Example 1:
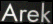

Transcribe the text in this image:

Arek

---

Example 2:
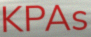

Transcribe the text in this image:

KPAs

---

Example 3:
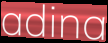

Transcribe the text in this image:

adina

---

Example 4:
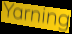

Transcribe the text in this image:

Yarning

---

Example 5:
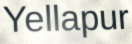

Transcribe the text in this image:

Yellapur